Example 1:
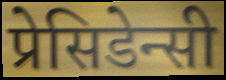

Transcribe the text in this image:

प्रेसिडेन्सी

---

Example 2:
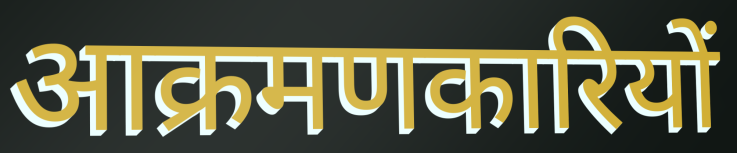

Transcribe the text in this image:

आक्रमणकारियों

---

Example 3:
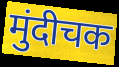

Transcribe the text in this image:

मुंदीचक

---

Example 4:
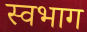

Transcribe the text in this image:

स्वभाग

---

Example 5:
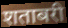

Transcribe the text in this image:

शताबरी